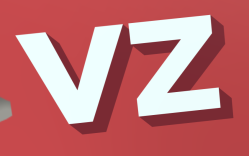
vz